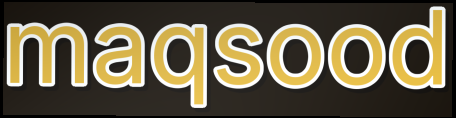
maqsood